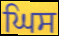
ਘਿਸ